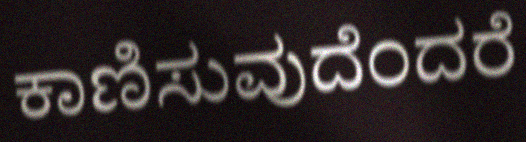
ಕಾಣಿಸುವುದೆಂದರೆ